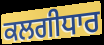
ਕਲਗੀਧਾਰ